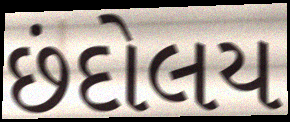
છંદોલય